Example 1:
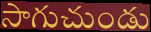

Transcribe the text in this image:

సాగుచుండు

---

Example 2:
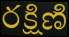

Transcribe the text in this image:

రక్షిణి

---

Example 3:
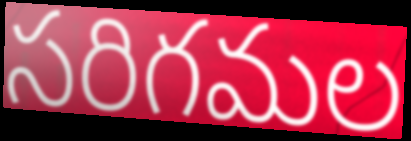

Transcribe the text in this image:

సరిగమల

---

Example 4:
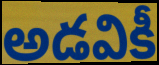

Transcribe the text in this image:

అడవికీ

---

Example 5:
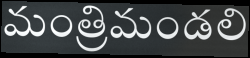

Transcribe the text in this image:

మంత్రిమండలి